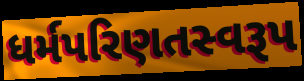
ધર્મપરિણતસ્વરૂપ